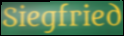
Siegfried